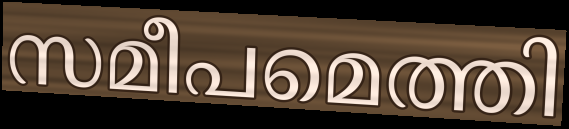
സമീപമെത്തി